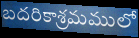
బదరికాశ్రమములో